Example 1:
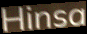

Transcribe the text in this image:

Hinsa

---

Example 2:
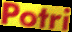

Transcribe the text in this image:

Potri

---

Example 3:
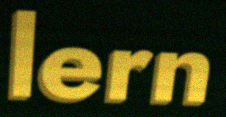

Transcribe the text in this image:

lern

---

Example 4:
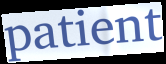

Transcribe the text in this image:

patient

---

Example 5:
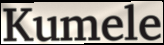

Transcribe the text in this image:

Kumele